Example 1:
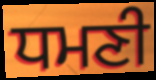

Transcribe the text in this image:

ਧਮਣੀ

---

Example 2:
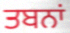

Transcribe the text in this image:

ਤਬਨਾਂ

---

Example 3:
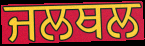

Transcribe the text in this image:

ਜਲਥਲ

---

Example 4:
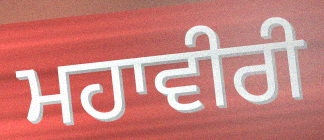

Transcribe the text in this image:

ਮਹਾਵੀਰੀ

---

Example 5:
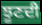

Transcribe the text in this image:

ਝੂਣਦੀ